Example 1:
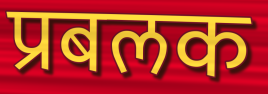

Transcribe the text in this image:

प्रबलक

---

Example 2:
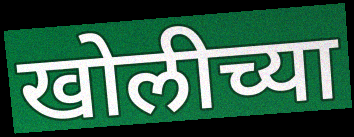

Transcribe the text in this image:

खोलीच्या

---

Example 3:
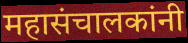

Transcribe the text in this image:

महासंचालकांनी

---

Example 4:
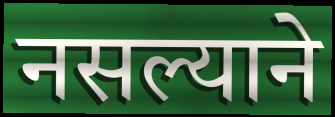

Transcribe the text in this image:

नसल्‍याने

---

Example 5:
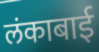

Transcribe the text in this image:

लंकाबाई